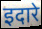
इदारे